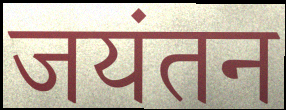
जयंतन